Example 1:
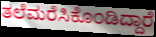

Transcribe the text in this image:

ತಲೆಮರೆಸಿಕೊಂಡಿದ್ದಾರೆ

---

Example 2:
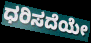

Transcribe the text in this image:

ಧರಿಸದೆಯೇ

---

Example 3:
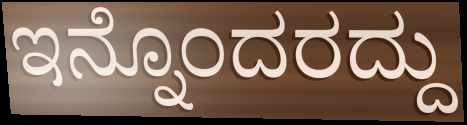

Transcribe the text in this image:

ಇನ್ನೊಂದರದ್ದು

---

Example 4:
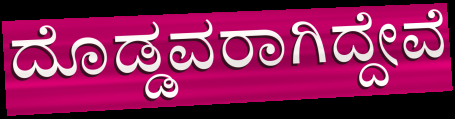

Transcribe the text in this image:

ದೊಡ್ಡವರಾಗಿದ್ದೇವೆ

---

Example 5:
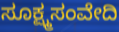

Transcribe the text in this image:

ಸೂಕ್ಷ್ಮಸಂವೇದಿ